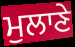
ਮੁਲਾਣੇ